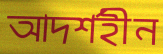
আদর্শহীন